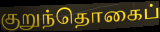
குறுந்தொகைப்